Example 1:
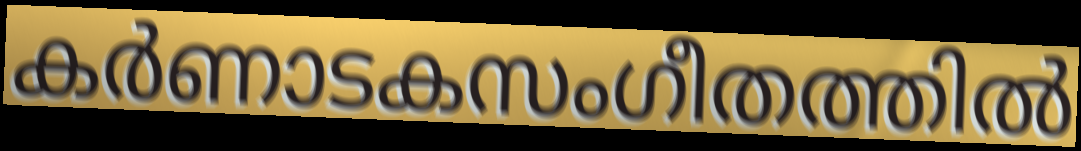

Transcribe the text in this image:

കർണാടകസംഗീതത്തിൽ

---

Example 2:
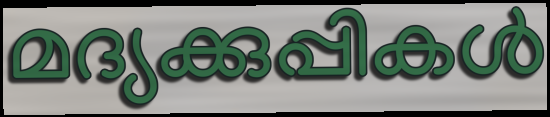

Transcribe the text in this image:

മദ്യക്കുപ്പികൾ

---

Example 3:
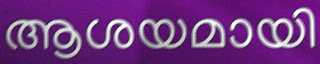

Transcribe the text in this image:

ആശയമായി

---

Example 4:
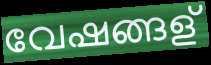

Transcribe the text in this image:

വേഷങ്ങള്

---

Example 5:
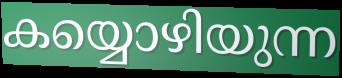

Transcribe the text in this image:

കയ്യൊഴിയുന്ന